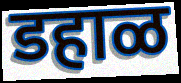
डहाळ